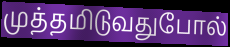
முத்தமிடுவதுபோல்